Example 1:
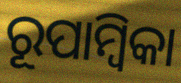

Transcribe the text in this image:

ରୂପାମ୍ୱିକା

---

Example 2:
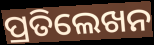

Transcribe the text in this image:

ପ୍ରତିଲେଖନ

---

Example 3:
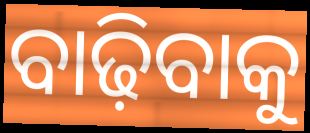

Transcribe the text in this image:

ବାଢ଼ିବାକୁ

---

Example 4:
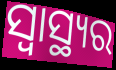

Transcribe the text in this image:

ସ୍ୱାସ୍ଥ୍ୟର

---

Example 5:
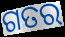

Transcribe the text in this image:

ଗତର